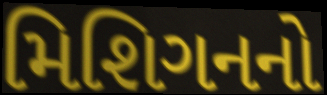
મિશિગનનો